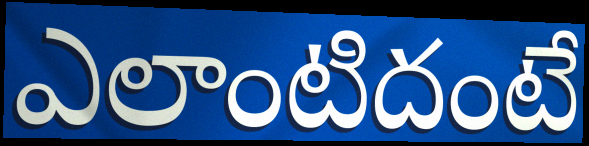
ఎలాంటిదంటే